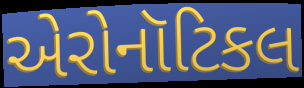
એરોનૉટિકલ